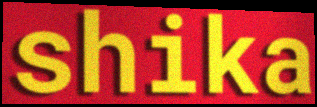
shika